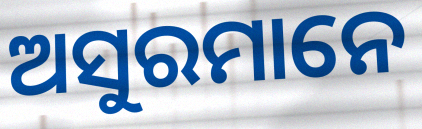
ଅସୁରମାନେ